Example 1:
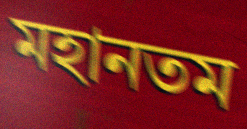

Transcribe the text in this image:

মহানতম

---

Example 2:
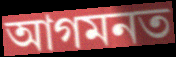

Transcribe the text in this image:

আগমনত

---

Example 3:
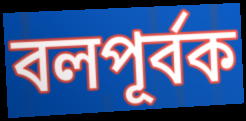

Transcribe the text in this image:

বলপূৰ্বক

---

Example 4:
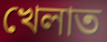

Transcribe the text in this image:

খেলাত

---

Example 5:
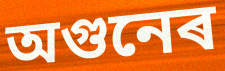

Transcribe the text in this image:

অগুনেৰ